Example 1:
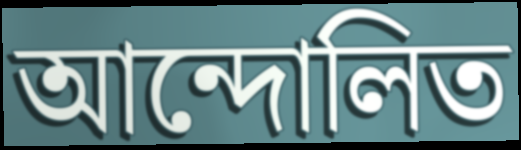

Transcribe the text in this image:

আন্দোলিত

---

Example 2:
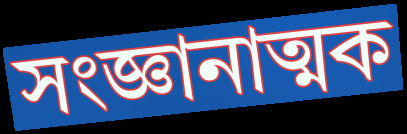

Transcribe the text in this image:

সংজ্ঞানাত্মক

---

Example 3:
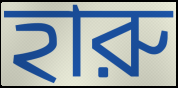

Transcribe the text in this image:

হারু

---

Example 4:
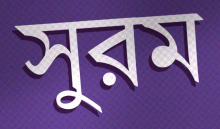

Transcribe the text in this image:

সুরম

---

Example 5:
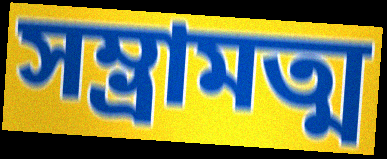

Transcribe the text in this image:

সম্ভ্রামত্ম